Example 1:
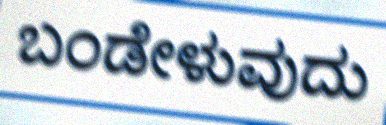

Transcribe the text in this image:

ಬಂಡೇಳುವುದು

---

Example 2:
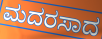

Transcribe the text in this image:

ಮದರಸಾದ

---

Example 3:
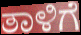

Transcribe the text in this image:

ತಾಳಿಗೆ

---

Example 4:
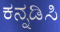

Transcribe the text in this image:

ಕನ್ನಡಿಸಿ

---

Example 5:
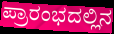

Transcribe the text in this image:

ಪ್ರಾರಂಭದಲ್ಲಿನ